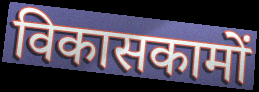
विकासकामों